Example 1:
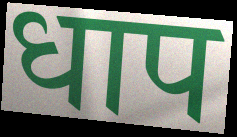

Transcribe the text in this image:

धाप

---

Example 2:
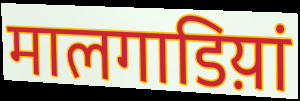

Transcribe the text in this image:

मालगाडिय़ां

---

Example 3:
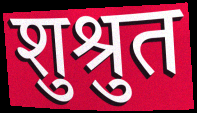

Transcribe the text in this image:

शुश्रुत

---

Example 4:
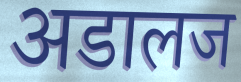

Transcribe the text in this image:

अडालज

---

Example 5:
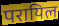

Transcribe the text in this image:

परायिल